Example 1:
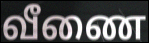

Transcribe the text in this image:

வீணை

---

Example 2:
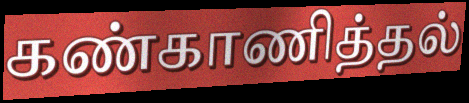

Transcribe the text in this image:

கண்காணித்தல்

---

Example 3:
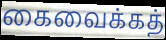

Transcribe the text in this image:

கைவைக்கத்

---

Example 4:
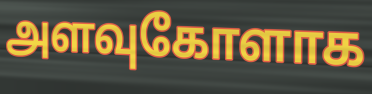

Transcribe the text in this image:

அளவுகோளாக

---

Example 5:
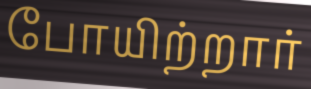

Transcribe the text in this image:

போயிற்றார்